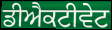
ਡੀਐਕਟੀਵੇਟ